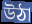
উঠা